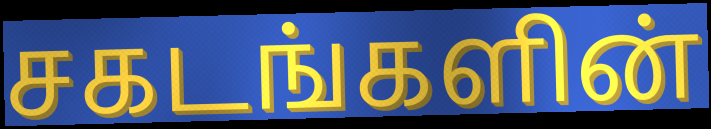
சகடங்களின்